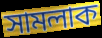
সামলাক